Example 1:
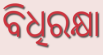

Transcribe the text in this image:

ବିଧିରକ୍ଷା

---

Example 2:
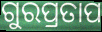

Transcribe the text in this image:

ଗୁରପ୍ରତାପ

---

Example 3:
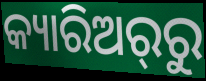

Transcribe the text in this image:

କ୍ୟାରିଅର୍‌ରୁ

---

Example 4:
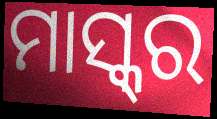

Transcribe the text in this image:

ମାସ୍କ୍‌ର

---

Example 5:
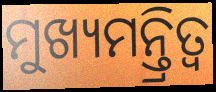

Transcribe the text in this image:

ମୁଖ୍ୟମନ୍ତ୍ରିତ୍ବ